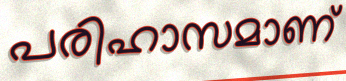
പരിഹാസമാണ്